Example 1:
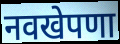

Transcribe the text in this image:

नवखेपणा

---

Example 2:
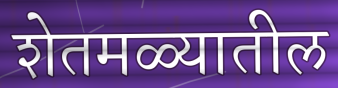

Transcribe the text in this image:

शेतमळ्यातील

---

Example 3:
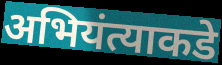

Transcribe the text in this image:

अभियंत्याकडे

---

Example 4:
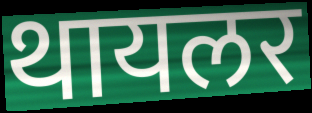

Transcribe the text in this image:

थायलर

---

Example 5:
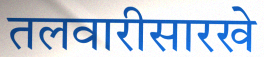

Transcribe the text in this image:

तलवारीसारखे